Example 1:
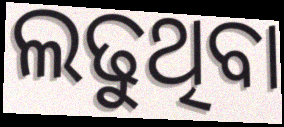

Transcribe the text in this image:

ଲଢୁଥିବା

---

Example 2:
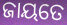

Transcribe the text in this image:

ଜାୟତେ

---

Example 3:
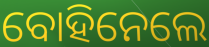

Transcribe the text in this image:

ବୋହିନେଲେ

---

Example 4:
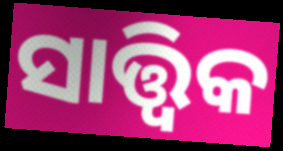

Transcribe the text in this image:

ସାତ୍ତ୍ବିକ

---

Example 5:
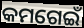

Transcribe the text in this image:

କମଗେଇଁ